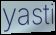
yasti